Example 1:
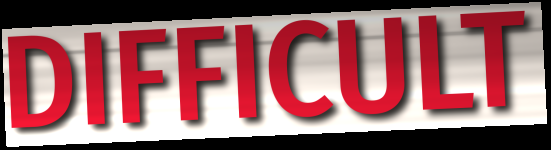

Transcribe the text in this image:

DIFFICULT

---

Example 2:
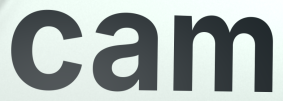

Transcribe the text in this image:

cam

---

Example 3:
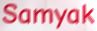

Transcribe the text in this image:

Samyak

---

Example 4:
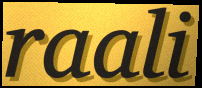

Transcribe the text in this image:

raali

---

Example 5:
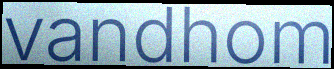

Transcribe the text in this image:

vandhom